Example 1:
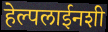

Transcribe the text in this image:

हेल्पलाईनशी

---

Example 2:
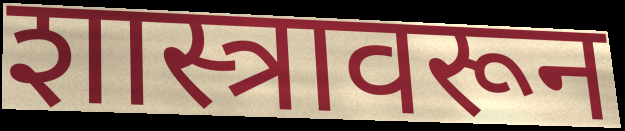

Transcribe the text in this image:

शास्त्रावरून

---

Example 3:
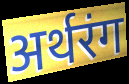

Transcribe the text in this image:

अर्थरंग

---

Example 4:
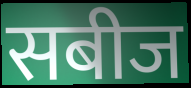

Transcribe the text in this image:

सबीज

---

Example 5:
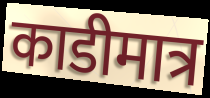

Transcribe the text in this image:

काडीमात्र